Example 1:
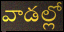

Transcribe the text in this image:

వాడల్లో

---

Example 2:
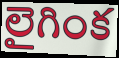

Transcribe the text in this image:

లైగింక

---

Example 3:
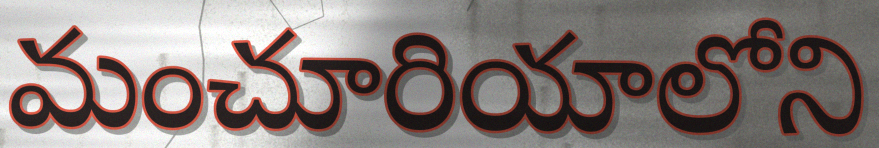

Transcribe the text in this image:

మంచూరియాలోని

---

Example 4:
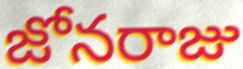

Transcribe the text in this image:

జోనరాజు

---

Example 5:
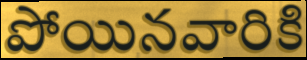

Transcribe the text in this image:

పోయినవారికి